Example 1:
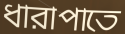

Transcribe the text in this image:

ধারাপাতে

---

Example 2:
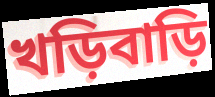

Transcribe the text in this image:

খড়িবাড়ি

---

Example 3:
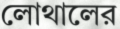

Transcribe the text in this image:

লোথালের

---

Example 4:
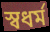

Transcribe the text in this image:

স্বধর্ম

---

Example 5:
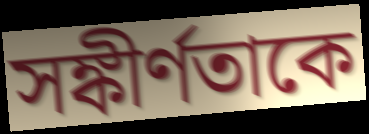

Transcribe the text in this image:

সঙ্কীর্ণতাকে